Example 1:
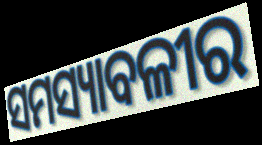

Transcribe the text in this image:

ସମସ୍ୟାବଳୀର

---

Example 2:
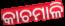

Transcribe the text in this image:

କାଚମାଳି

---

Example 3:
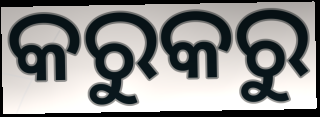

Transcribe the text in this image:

କରୁକରୁ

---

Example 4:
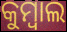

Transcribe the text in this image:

କୁମ୍ବାଲ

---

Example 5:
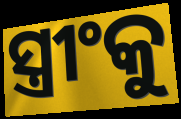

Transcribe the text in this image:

ସ୍ତ୍ରୀଂକୁ